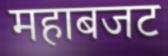
महाबजट